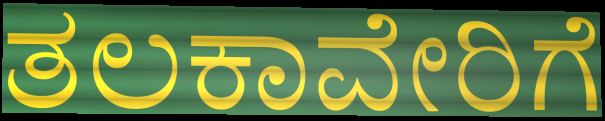
ತಲಕಾವೇರಿಗೆ